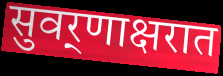
सुवर्णाक्षरात